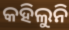
କହିଲୁନି